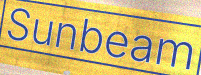
Sunbeam